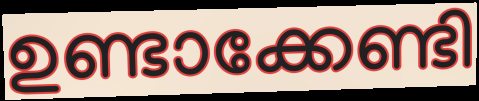
ഉണ്ടാക്കേണ്ടി